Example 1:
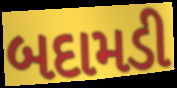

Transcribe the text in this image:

બદામડી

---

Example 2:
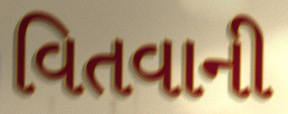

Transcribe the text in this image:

વિતવાની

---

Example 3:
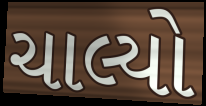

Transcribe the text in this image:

ચાલ્યો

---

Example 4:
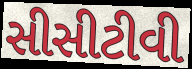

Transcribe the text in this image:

સીસીટીવી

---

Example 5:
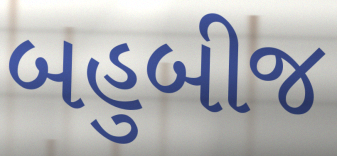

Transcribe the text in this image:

બહુબીજ